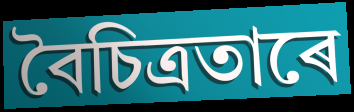
বৈচিত্ৰতাৰে